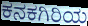
ಕನಕಗಿರಿಯ